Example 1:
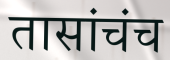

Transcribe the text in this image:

तासांचंच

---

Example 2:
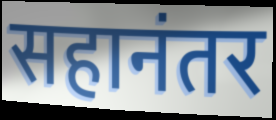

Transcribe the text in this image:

सहानंतर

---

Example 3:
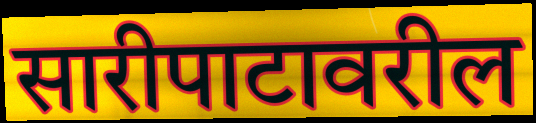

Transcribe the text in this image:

सारीपाटावरील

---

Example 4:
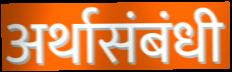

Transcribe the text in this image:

अर्थासंबंधी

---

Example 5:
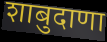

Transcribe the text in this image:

शाबुदाणा